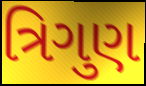
ત્રિગુણ